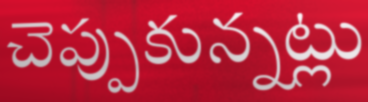
చెప్పుకున్నట్లు